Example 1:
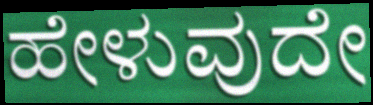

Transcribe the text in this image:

ಹೇಳುವುದೇ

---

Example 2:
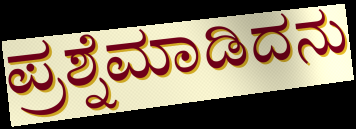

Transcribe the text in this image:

ಪ್ರಶ್ನೆಮಾಡಿದನು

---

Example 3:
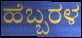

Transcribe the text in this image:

ಹೆಬ್ಬರಳ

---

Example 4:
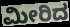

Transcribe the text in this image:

ಮೀರಿದ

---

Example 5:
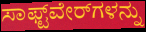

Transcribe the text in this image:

ಸಾಫ್ಟ್‌ವೇರ್‌ಗಳನ್ನು